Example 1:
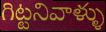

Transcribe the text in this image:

గిట్టనివాళ్ళు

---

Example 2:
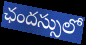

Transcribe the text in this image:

ఛందస్సులో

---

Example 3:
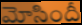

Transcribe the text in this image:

మోసిందీ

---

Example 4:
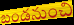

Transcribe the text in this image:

బండనుంచి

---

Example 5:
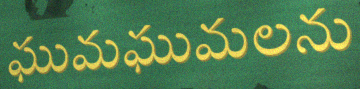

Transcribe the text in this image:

ఘుమఘుమలను